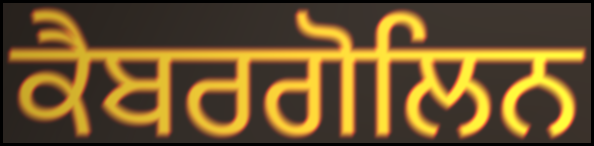
ਕੈਬਰਗੋਲਿਨ